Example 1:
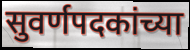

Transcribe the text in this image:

सुवर्णपदकांच्या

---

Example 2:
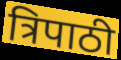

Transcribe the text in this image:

त्रिपाठी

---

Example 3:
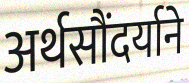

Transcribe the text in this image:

अर्थसौंदर्याने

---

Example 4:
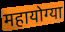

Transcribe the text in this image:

महायोग्या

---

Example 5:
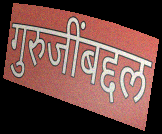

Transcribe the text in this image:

गुरुजींबद्दल